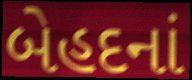
બેહદનાં